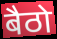
बैठो